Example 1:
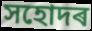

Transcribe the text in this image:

সহোদৰ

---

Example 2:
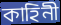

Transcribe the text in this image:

কাহিনী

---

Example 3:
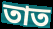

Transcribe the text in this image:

তাত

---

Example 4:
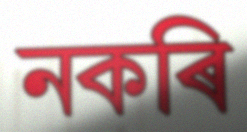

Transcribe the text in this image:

নকৰি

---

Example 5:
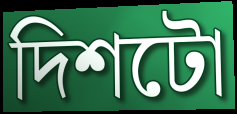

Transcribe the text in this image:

দিশটো